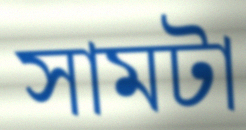
সামটা